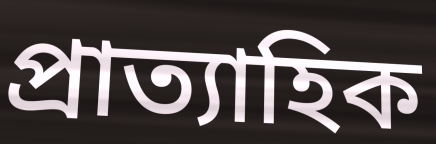
প্ৰাত্যাহিক